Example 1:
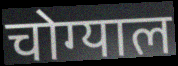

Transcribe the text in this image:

चोग्याल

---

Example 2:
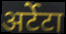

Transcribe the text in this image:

अर्टेटा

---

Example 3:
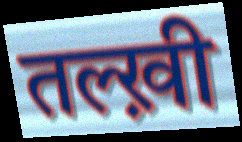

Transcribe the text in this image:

तल्ख़ी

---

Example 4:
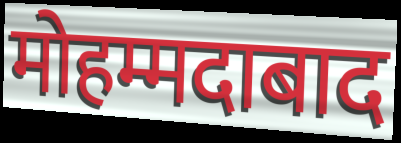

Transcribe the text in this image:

मोहम्मदाबाद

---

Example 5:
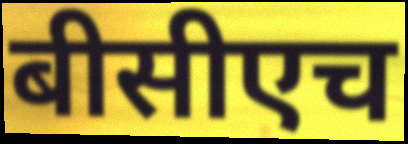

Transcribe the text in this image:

बीसीएच